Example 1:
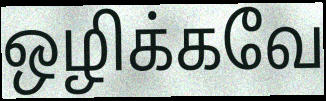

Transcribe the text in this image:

ஒழிக்கவே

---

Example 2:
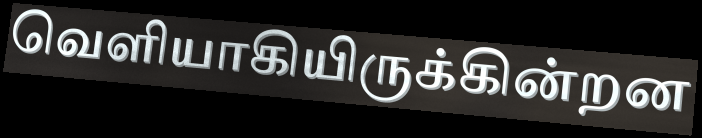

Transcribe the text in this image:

வெளியாகியிருக்கின்றன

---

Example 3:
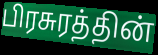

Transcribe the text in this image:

பிரசுரத்தின்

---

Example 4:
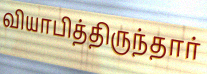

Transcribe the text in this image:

வியாபித்திருந்தார்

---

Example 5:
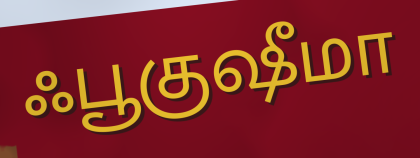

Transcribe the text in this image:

ஃபூகுஷீமா